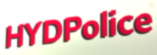
HYDPolice